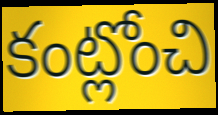
కంట్లోంచి